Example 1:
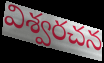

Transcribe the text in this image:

విశ్వరచన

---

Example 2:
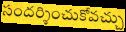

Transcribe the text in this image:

సందర్శించుకోవచ్చు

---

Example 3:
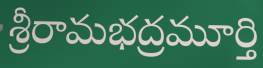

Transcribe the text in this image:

శ్రీరామభద్రమూర్తి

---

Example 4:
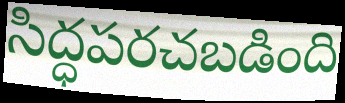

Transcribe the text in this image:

సిద్ధపరచబడింది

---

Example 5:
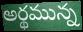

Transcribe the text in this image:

అర్థమున్న